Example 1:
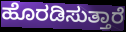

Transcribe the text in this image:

ಹೊರಡಿಸುತ್ತಾರೆ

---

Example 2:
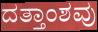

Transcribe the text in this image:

ದತ್ತಾಂಶವು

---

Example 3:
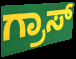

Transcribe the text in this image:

ಗ್ರಾಸ್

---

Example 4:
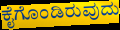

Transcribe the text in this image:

ಕೈಗೊಂಡಿರುವುದು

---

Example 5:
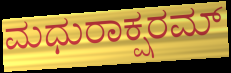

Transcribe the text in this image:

ಮಧುರಾಕ್ಷರಮ್